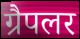
ग्रैपलर